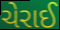
ચેરાઈ